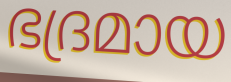
ഭദ്രമായ